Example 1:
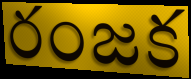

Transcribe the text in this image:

రంజక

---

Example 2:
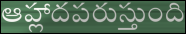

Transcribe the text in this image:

ఆహ్లాదపరుస్తుంది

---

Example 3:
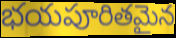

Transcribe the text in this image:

భయపూరితమైన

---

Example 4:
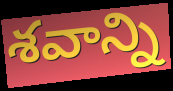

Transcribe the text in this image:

శవాన్ని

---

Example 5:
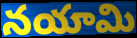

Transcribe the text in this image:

నయామి